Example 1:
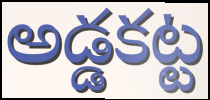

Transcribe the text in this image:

అడ్డకట్ట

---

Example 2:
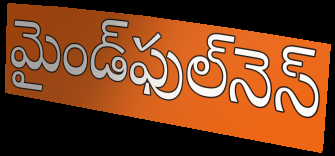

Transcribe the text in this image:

మైండ్‌ఫుల్‌నెస్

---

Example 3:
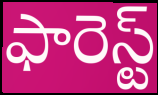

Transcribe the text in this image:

ఫారెస్ట్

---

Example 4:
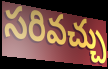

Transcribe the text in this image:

సరివచ్చు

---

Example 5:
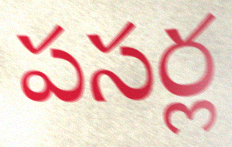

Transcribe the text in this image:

పసర్ల